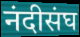
नंदीसंघ